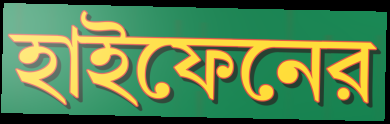
হাইফেনের